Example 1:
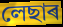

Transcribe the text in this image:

লেছাৰ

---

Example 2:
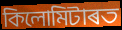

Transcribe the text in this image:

কিলোমিটাৰত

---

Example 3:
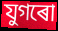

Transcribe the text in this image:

যুগৰো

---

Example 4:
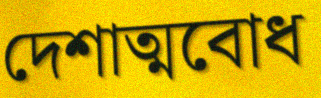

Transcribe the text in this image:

দেশাত্মবোধ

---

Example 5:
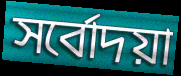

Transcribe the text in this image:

সৰ্বোদয়া